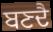
ਬਣਦੈ